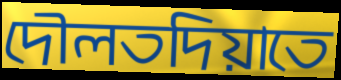
দৌলতদিয়াতে